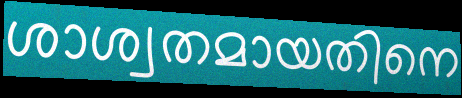
ശാശ്വതമായതിനെ